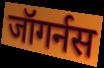
जॉगर्नस